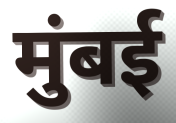
मुंबई